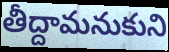
తీద్దామనుకుని